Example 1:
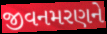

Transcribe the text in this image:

જીવનમરણને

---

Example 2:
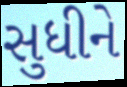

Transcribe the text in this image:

સુધીને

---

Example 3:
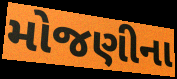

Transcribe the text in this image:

મોજણીના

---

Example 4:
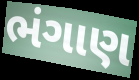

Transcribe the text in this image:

ભંગાણ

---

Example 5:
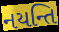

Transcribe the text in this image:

નયન્તિ